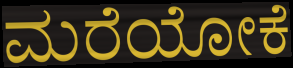
ಮರೆಯೋಕೆ